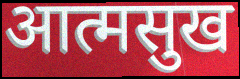
आत्मसुख